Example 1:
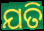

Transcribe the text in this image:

ଯତି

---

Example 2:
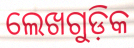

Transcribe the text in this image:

ଲେଖଗୁଡ଼ିକ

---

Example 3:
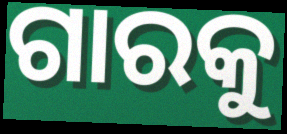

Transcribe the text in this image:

ଗାରକୁ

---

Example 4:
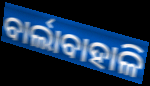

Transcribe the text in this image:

ବାର୍ଲାବାହାଳି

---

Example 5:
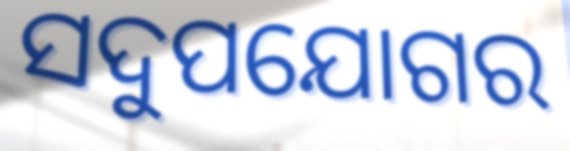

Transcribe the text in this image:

ସଦୁପଯୋଗର